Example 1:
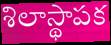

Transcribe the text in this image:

శిలాస్థాపక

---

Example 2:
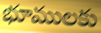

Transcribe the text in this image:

భూములకు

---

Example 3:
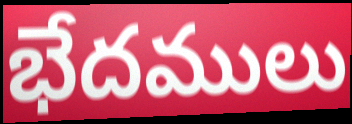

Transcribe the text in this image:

భేదములు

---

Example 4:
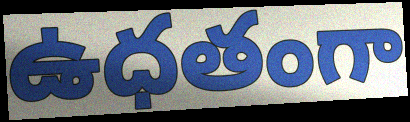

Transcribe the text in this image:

ఉధతంగా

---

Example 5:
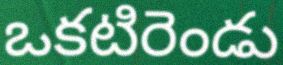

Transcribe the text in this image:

ఒకటిరెండు